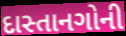
દાસ્તાનગોની